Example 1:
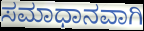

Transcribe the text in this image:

ಸಮಾಧಾನವಾಗಿ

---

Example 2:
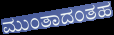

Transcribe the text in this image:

ಮುಂತಾದಂತಹ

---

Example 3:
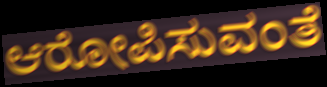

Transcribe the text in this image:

ಆರೋಪಿಸುವಂತೆ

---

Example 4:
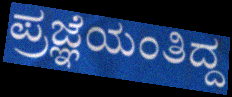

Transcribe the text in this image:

ಪ್ರಜ್ಞೆಯಂತಿದ್ದ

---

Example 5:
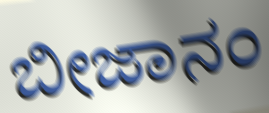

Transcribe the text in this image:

ಬೀಜಾನಂ